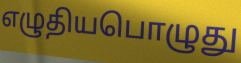
எழுதியபொழுது